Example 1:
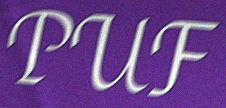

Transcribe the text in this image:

PUF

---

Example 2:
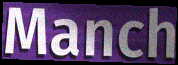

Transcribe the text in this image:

Manch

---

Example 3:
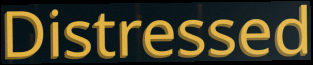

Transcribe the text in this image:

Distressed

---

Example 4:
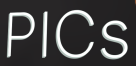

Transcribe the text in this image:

PICs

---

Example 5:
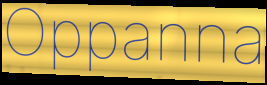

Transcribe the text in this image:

Oppanna